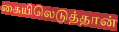
கையிலெடுத்தான்